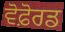
ਵੋਫ਼ੋਰਡ